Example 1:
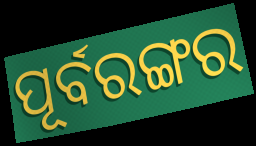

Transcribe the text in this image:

ପୂର୍ବରଙ୍ଗର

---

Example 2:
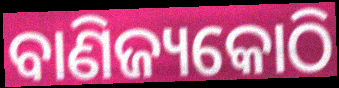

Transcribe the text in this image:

ବାଣିଜ୍ୟକୋଠି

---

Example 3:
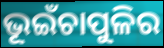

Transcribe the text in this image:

ଭୂଇଁଚାପୁଳିର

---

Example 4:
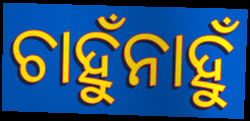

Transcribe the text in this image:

ଚାହୁଁନାହୁଁ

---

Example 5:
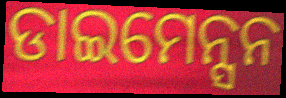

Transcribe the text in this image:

ଡାଇମେନ୍ସନ